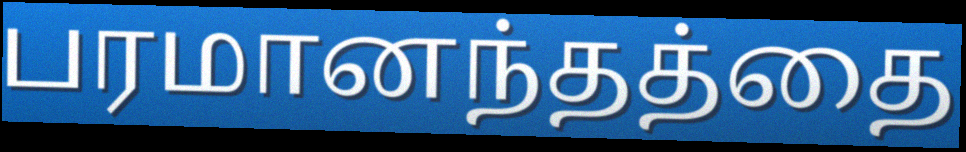
பரமானந்தத்தை